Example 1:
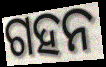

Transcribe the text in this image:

ଗହନ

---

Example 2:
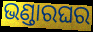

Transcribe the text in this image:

ଭଣ୍ଡାରଘର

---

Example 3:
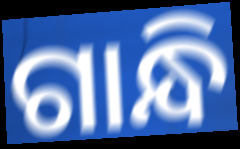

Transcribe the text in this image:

ଗାନ୍ଧି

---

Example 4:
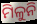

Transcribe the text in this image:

ମିଳୁନି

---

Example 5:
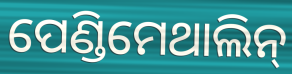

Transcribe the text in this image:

ପେଣ୍ଡିମେଥାଲିନ୍